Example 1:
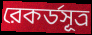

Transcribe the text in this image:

রেকর্ডসূত্র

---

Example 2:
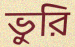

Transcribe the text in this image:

ভুরি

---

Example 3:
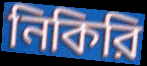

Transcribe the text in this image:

নিকিরি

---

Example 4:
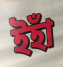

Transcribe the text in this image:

ইহাঁ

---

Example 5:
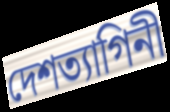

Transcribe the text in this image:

দেশত্যাগিনী